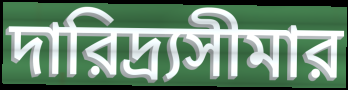
দারিদ্র্যসীমার